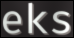
eks